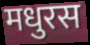
मधुरस